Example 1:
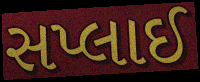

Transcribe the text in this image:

સપ્લાઈ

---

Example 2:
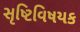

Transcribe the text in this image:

સૃષ્ટિવિષયક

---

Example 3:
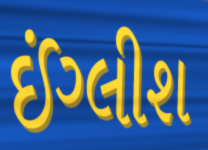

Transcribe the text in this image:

ઈંગ્લીશ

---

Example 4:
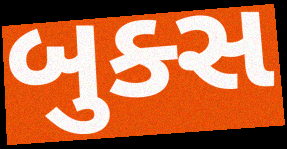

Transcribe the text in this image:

બુક્સ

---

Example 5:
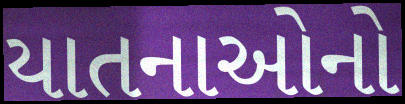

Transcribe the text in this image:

યાતનાઓનો